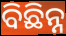
ବିଛିନ୍ନ